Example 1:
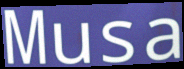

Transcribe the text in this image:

Musa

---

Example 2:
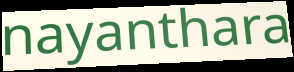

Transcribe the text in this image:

nayanthara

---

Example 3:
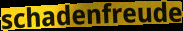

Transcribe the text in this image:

schadenfreude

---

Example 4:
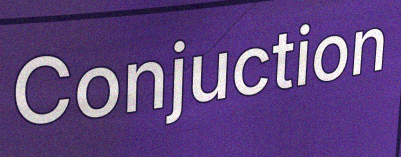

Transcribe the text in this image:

Conjuction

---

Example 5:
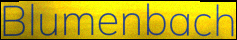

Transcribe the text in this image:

Blumenbach